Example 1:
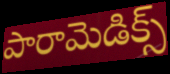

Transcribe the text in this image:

పారామెడిక్స్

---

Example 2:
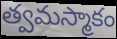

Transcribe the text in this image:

త్వమస్మాకం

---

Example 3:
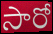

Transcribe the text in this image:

సారో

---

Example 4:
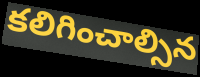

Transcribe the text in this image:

కలిగించాల్సిన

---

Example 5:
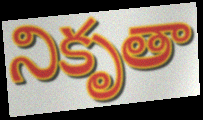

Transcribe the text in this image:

నికృతా